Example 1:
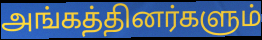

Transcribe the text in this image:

அங்கத்தினர்களும்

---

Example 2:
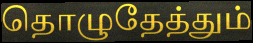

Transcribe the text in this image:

தொழுதேத்தும்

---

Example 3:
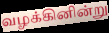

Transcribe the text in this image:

வழக்கினின்று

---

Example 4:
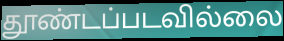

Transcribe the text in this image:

தூண்டப்படவில்லை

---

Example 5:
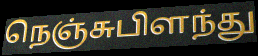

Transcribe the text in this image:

நெஞ்சுபிளந்து